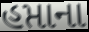
હપ્તાના